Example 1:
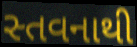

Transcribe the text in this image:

સ્તવનાથી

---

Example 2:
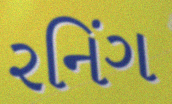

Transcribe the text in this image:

રનિંગ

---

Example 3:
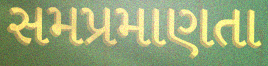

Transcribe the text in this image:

સમપ્રમાણતા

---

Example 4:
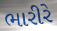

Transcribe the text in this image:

ભારીરે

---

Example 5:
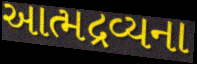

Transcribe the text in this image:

આત્મદ્રવ્યના